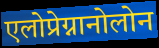
एलोप्रेग्नानोलोन